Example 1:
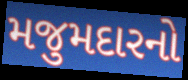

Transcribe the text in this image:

મજુમદારનો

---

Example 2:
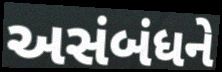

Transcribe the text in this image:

અસંબંધને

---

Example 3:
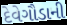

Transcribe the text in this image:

દેવેગૌડાની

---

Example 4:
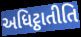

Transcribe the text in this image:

અધિટ્ઠાતીતિ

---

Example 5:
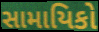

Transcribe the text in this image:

સામાયિકો